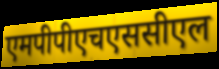
एमपीपीएचएससीएल